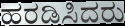
ಹರಡಿಸಿದರು